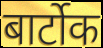
बार्टोक